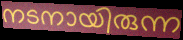
നടനായിരുന്ന